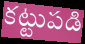
కట్టుపడి